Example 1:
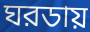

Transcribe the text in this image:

ঘরডায়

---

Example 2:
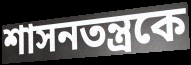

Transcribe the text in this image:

শাসনতন্ত্রকে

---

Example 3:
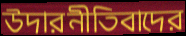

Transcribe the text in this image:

উদারনীতিবাদের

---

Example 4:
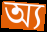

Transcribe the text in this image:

অ্য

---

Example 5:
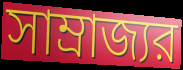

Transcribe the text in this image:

সাম্রাজ্যর